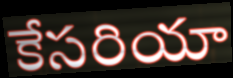
కేసరియా